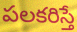
పలకరిస్తే